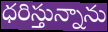
ధరిస్తున్నాను